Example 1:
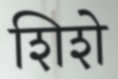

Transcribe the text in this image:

शिशे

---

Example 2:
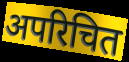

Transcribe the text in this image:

अपरिचित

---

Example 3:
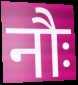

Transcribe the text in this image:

नौः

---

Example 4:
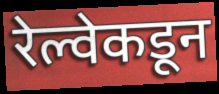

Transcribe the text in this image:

रेल्वेकडून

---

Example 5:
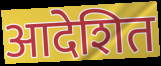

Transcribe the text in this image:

आदेशित